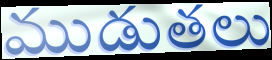
ముడుతలు